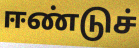
ஈண்டுச்